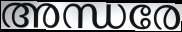
അന്ധരേ